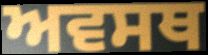
ਅਵਸਥ